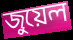
জুয়েল